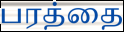
பரத்தை